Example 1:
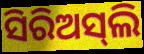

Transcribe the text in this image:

ସିରିଅସ୍‌ଲି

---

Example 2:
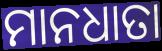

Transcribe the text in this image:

ମାନଧାତା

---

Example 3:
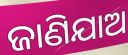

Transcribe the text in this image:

ଜାଣିଯାଅ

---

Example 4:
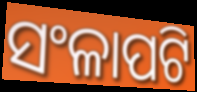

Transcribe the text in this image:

ସଂଳାପଟି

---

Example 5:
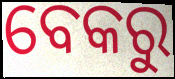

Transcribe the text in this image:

ବେକରୁ